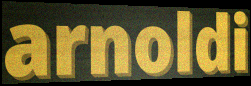
arnoldi